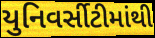
યુનિવર્સીટીમાંથી